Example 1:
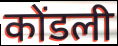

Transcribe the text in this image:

कोंडली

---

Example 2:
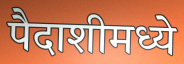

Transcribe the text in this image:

पैदाशीमध्ये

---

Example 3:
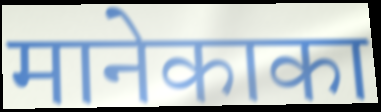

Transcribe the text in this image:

मानेकाका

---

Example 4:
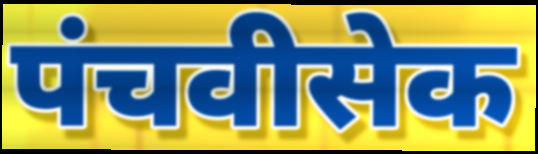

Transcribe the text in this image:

पंचवीसेक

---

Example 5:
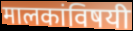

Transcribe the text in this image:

मालकांविषयी